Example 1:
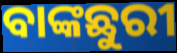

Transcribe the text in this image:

ବାଙ୍କଛୁରୀ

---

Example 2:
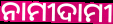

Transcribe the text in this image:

ନାମୀଦାମୀ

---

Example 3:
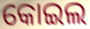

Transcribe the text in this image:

କୋଇଲ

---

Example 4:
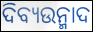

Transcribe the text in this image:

ଦିବ୍ୟଉନ୍ମାଦ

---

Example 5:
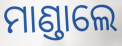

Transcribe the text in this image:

ମାଣ୍ଡାଲେ